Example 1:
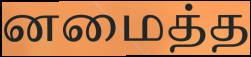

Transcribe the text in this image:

னமைத்த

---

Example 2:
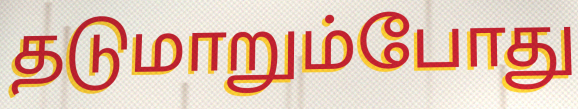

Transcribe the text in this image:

தடுமாறும்போது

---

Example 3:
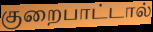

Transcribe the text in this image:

குறைபாட்டால்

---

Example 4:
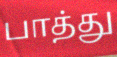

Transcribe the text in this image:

பாத்து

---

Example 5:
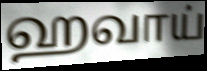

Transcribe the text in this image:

ஹவாய்